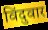
विंदुवार